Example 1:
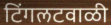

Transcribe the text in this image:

टिंगलटवाळी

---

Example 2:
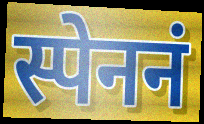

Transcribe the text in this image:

स्पेननं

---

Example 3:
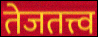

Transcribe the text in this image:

तेजतत्त्व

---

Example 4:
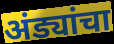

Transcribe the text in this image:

अंड्यांचा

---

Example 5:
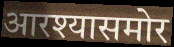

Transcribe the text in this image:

आरश्यासमोर